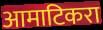
आमाटिकरा